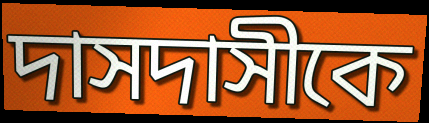
দাসদাসীকে